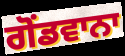
ਗੋਂਡਵਾਨਾ